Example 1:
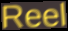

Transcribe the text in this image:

Reel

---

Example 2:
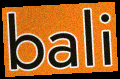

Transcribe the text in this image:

bali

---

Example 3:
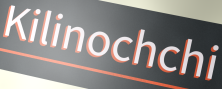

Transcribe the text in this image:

Kilinochchi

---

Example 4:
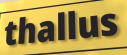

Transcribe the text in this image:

thallus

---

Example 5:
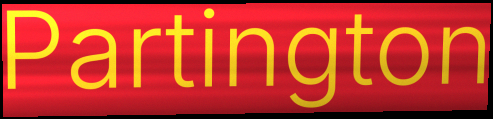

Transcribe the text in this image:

Partington